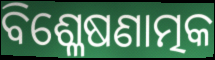
ବିଶ୍ଳେଷଣାତ୍ମକ